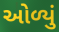
ઓળ્યું